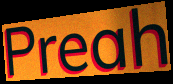
Preah